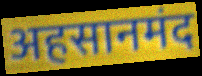
अहसानमंद